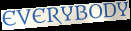
EVERYBODY